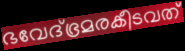
ഭവേദ്ഭ്രമരകീടവത്